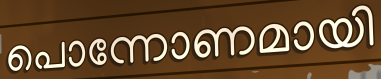
പൊന്നോണമായി